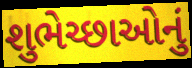
શુભેચ્છાઓનું